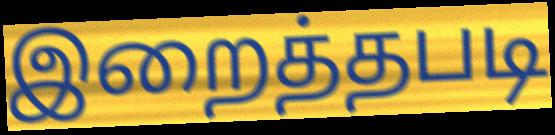
இறைத்தபடி